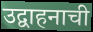
उद्वाहनाची